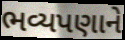
ભવ્યપણાને